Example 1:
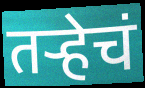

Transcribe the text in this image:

तर्‍हेचं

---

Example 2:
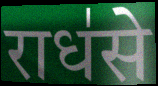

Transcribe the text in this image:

राध॑से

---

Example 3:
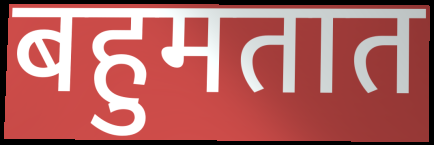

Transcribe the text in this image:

बहुमतात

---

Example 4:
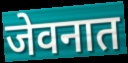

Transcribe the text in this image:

जेवनात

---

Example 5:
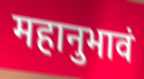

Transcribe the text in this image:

महानुभावं